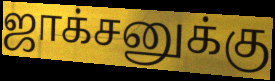
ஜாக்சனுக்கு